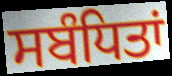
ਸਬੰਧਿਤਾਂ